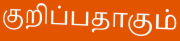
குறிப்பதாகும்